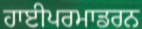
ਹਾਈਪਰਮਾਡਰਨ